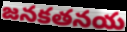
జనకతనయ